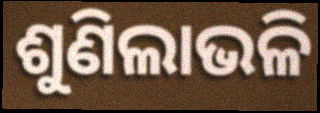
ଶୁଣିଲାଭଳି